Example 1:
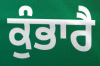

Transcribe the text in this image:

ਕੁੰਭਾਰੈ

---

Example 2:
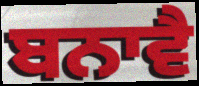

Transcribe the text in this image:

ਬਨਾਵੈ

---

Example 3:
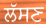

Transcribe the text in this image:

ਲੱਸਣ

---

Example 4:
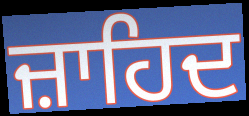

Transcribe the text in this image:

ਜ਼ਾਹਿਦ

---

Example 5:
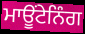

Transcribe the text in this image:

ਮਾਊਂਟੇਨਿੰਗ